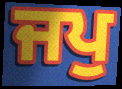
ਜਪੁ